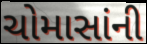
ચોમાસાંની